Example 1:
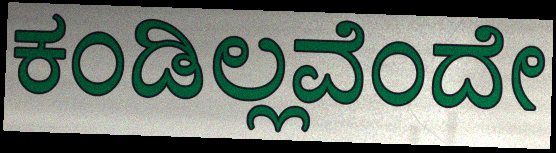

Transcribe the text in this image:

ಕಂಡಿಲ್ಲವೆಂದೇ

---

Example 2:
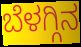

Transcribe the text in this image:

ಬೆಳಗ್ಗಿನ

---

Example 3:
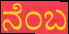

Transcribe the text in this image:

ನೆಂಬ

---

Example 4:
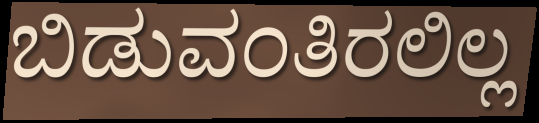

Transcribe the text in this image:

ಬಿಡುವಂತಿರಲಿಲ್ಲ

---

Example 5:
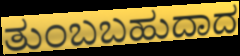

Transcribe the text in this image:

ತುಂಬಬಹುದಾದ